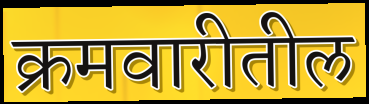
क्रमवारीतील